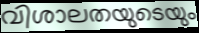
വിശാലതയുടെയും